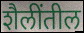
शैलींतील